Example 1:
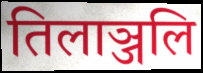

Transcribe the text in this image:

तिलाञ्जलि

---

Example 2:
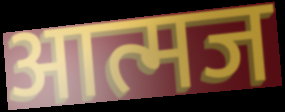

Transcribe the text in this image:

आत्मज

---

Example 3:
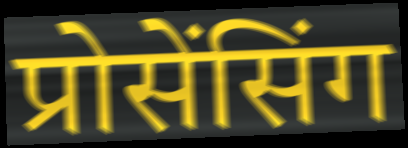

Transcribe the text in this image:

प्रोसेंसिंग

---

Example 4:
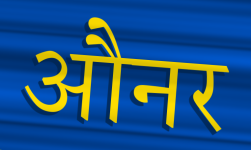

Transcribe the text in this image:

औनर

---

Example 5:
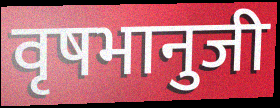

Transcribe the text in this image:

वृषभानुजी